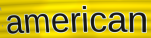
american